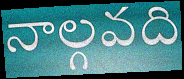
నాల్గవది